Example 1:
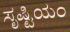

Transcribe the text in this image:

ಸೃಷ್ಟಿಯಂ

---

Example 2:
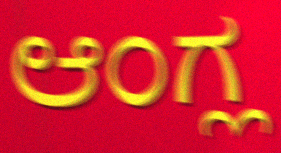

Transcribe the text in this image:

ಆಂಗ್ಲ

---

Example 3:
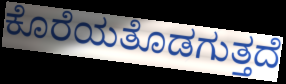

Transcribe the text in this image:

ಕೊರೆಯತೊಡಗುತ್ತದೆ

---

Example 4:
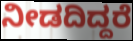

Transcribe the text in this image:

ನೀಡದಿದ್ದರೆ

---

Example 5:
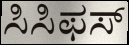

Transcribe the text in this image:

ಸಿಸಿಫಸ್